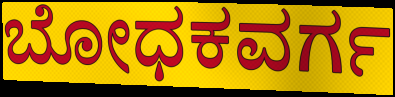
ಬೋಧಕವರ್ಗ